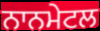
ਨਾਨਮੇਟਲ